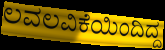
ಲವಲವಿಕೆಯಿಂದಿದ್ದ